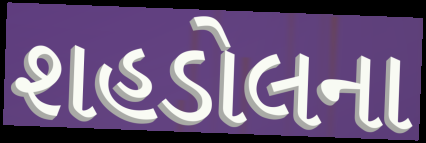
શહડોલના